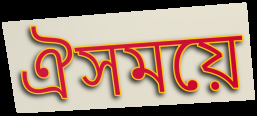
ঐসময়ে